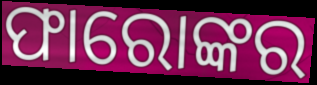
ଫାରୋଙ୍କର